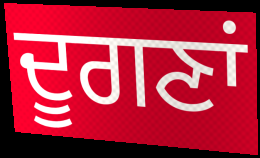
ਦੂਗਣਾਂ